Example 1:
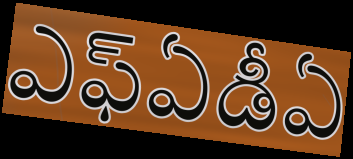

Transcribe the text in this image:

ఎఫ్ఏడీఏ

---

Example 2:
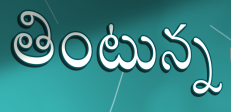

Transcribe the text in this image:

తింటున్న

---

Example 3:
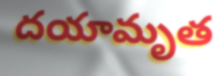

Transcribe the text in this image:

దయామృత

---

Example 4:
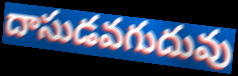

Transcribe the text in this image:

దాసుడవగుదువు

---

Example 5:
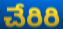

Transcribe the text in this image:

చేరిరి